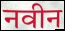
नवीन